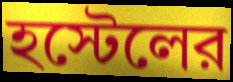
হস্টেলের